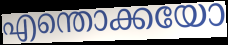
എന്തൊക്കയോ